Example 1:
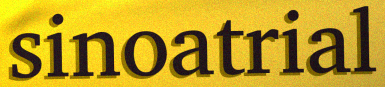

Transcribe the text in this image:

sinoatrial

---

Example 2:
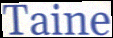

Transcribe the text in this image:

Taine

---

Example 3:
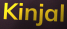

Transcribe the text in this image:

Kinjal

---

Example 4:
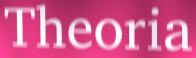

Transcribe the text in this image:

Theoria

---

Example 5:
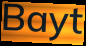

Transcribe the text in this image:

Bayt